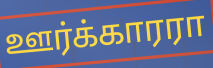
ஊர்க்காரரா